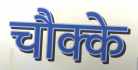
चौक्के